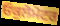
ਓਕੁਲੋਮੋਟਰ